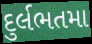
દુર્લભતમા